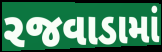
રજવાડામાં